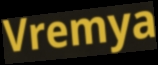
Vremya